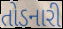
તોડનારી